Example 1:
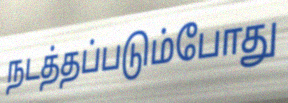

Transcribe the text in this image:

நடத்தப்படும்போது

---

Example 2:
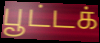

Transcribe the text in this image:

பூட்டக்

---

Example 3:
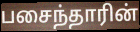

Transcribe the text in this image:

பசைந்தாரின்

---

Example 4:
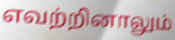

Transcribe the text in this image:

எவற்றினாலும்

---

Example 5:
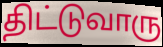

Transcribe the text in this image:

திட்டுவாரு